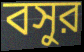
বসুর